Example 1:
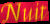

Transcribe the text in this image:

Nuit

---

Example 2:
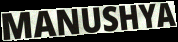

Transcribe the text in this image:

MANUSHYA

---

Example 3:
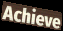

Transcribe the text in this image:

Achieve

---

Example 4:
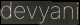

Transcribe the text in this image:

devyani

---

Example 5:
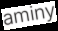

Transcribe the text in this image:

aminy